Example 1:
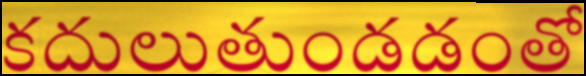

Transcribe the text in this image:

కదులుతుండడంతో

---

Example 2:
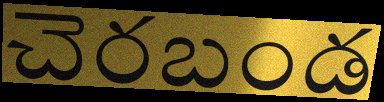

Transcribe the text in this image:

చెరబండ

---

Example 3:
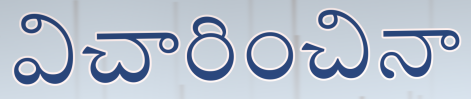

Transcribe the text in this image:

విచారించినా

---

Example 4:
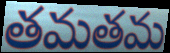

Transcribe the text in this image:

తమతమ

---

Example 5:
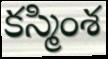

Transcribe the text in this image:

కస్మింశ